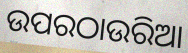
ଉପରଠାଉରିଆ